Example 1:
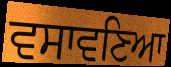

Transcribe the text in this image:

ਵਸਾਵਣਿਆ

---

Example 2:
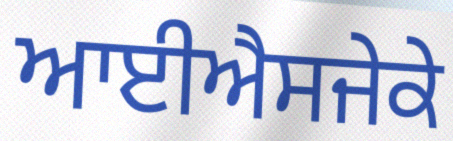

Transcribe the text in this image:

ਆਈਐਸਜੇਕੇ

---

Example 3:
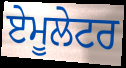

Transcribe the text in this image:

ਏਮੂਲੇਟਰ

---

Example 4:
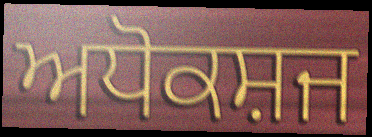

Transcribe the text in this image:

ਅਧੋਕਸ਼ਜ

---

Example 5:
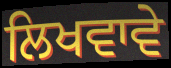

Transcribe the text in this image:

ਲਿਖਵਾਵੇ